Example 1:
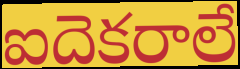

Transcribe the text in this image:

ఐదెకరాలే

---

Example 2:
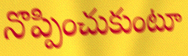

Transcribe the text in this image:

నొప్పించుకుంటూ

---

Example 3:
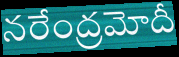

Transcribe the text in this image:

నరేంద్రమోదీ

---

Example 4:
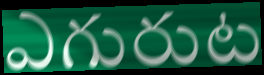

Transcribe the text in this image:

ఎగురుట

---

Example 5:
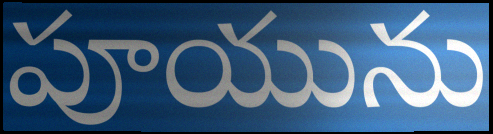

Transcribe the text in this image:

పూయును